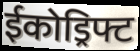
ईकोड्रिफ्ट